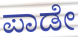
ಪಾಡೇ